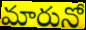
మారునో